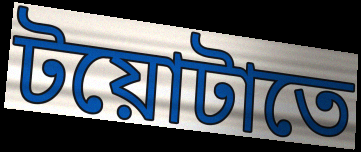
টয়োটাতে